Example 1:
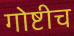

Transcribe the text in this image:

गोष्टीच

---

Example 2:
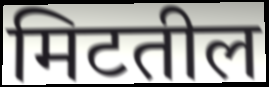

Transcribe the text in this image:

मिटतील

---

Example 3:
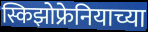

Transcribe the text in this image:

स्किझोफ्रेनियाच्या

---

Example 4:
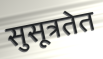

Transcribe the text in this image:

सुसूत्रतेत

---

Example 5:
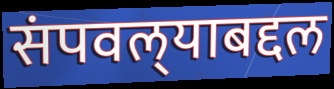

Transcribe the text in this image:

संपवल्याबद्दल